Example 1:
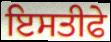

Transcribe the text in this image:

ਇਸਤੀਫੇ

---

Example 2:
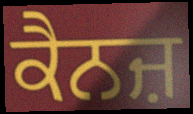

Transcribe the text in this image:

ਕੈਨਜ਼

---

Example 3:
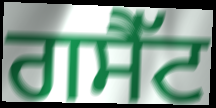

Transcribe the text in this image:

ਗਸੈੱਟ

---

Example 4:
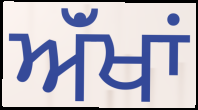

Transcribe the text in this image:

ਅੱਂਖਾਂ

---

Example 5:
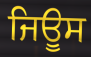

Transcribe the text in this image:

ਜਿਊਸ